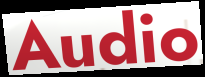
Audio